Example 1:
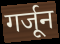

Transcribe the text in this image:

गर्जून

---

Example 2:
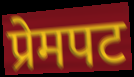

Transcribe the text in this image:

प्रेमपट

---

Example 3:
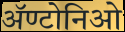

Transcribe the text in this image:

ॲण्टोनिओ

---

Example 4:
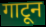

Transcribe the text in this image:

गाटून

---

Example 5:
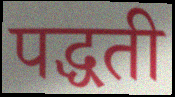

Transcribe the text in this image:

पद्धती